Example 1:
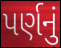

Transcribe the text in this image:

પર્ણનું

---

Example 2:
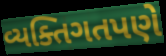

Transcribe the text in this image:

વ્યક્તિગતપણે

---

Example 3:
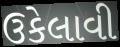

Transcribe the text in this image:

ઉકેલાવી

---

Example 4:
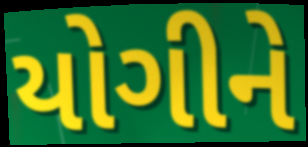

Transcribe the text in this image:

યોગીને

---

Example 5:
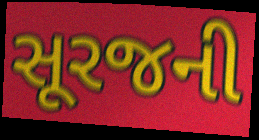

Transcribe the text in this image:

સૂરજની